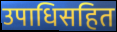
उपाधिसहित